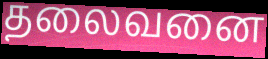
தலைவனை